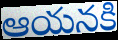
ఆయనకి